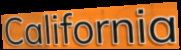
California